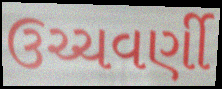
ઉચ્ચવર્ણી